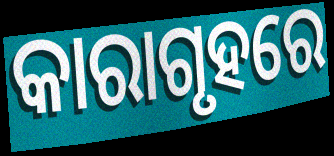
କାରାଗୃହରେ